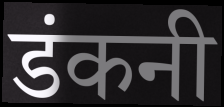
डंकनी